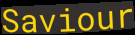
Saviour